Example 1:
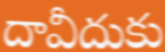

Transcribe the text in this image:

దావీదుకు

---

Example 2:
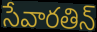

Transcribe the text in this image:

సేవారతిన్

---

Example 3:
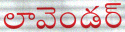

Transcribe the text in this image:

లావెండర్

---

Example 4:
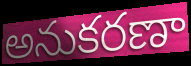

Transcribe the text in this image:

అనుకరణా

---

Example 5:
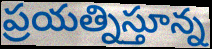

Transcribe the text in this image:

ప్రయత్నిస్తూన్న